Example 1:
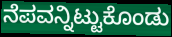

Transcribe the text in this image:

ನೆಪವನ್ನಿಟ್ಟುಕೊಂಡು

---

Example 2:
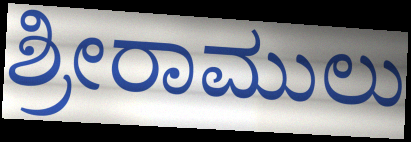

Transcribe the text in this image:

ಶ್ರೀರಾಮುಲು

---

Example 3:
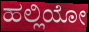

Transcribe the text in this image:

ಹಲ್ಲಿಯೋ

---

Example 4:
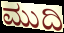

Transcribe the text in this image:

ಮುದಿ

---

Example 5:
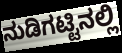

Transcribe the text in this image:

ನುಡಿಗಟ್ಟಿನಲ್ಲಿ